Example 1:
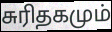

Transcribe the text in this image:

சுரிதகமும்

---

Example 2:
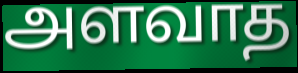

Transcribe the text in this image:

அளவாத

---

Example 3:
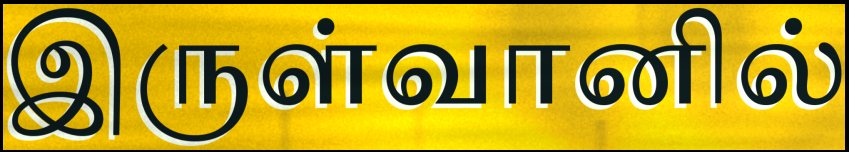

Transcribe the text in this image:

இருள்வானில்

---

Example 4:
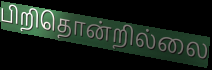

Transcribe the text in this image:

பிறிதொன்றில்லை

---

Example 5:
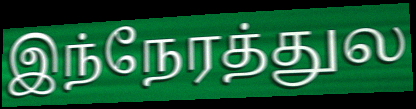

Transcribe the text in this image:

இந்நேரத்துல